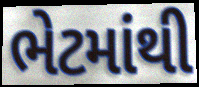
ભેટમાંથી